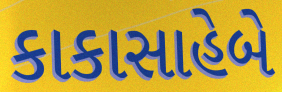
કાકાસાહેબે